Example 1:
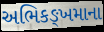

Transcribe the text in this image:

અભિકઙ્ખમાના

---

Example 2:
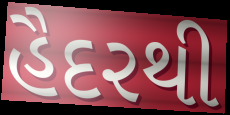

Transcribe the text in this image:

હૈદરથી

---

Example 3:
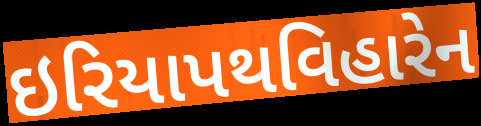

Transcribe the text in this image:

ઇરિયાપથવિહારેન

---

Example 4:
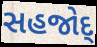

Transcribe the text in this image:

સહજોદ્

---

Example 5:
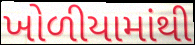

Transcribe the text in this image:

ખોળીયામાંથી